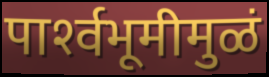
पार्श्वभूमीमुळं